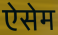
ऐसेम